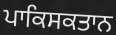
ਪਾਕਿਸਕਤਾਨ